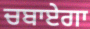
ਚਬਾਏਗਾ